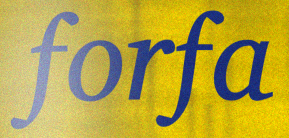
forfa